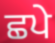
ਛਪੇ